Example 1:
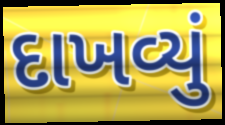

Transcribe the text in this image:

દાખવ્યું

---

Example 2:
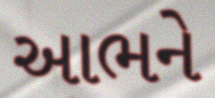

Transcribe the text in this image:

આભને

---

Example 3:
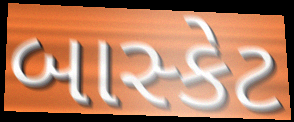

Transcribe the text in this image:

બાસ્કેટ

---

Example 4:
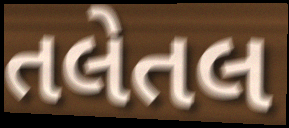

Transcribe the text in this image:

તલેતલ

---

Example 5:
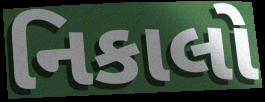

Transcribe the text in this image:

નિકાલો